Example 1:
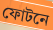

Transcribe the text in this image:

ফোটনে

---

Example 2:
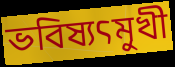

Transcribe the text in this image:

ভবিষ্যৎমুখী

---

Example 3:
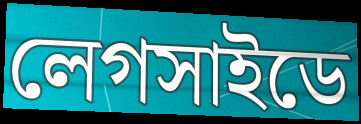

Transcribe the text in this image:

লেগসাইডে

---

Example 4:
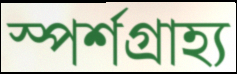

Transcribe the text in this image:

স্পর্শগ্রাহ্য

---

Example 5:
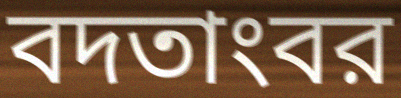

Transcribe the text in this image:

বদতাংবর